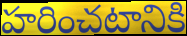
హరించటానికి